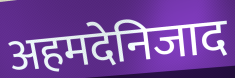
अहमदेनिजाद